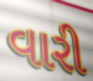
વારી